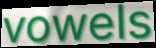
vowels